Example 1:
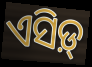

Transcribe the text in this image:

ଏସିଡ଼୍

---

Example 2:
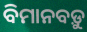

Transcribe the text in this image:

ବିମାନବଡ଼ୁ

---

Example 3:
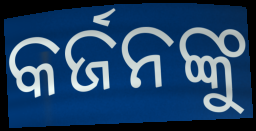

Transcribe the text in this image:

କର୍ଜନଙ୍କୁ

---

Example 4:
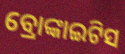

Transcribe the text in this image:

ବ୍ରୋଙ୍କାଇଟିସ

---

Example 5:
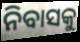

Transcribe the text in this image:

ନିବାସକୁ